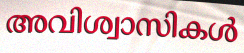
അവിശ്വാസികൾ